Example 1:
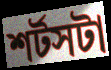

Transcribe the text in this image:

শর্টসটা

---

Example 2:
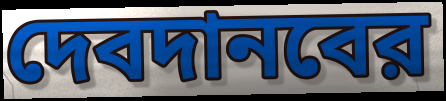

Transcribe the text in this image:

দেবদানবের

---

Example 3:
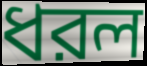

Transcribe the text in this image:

ধরল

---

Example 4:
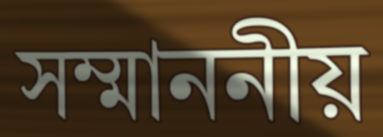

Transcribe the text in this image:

সম্মাননীয়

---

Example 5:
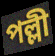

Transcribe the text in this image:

পল্লী